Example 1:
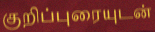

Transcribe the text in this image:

குறிப்புரையுடன்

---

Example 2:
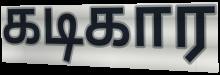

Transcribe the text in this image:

கடிகார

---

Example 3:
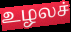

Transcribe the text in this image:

உழலச்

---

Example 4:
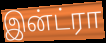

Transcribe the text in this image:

இன்ட்ரா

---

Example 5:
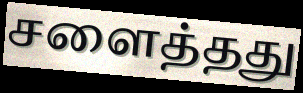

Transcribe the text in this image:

சளைத்தது